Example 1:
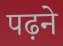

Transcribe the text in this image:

पढ़ने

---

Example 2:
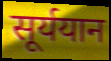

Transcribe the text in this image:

सूर्ययान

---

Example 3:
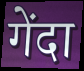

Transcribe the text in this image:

गेंदा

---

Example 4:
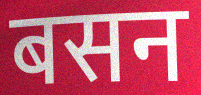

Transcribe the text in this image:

बसन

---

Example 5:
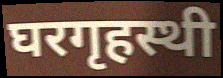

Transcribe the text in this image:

घरगृहस्थी